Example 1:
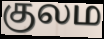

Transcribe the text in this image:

குலம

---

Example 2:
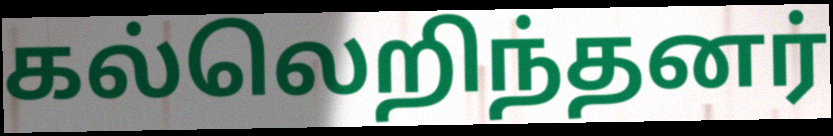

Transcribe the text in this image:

கல்லெறிந்தனர்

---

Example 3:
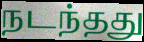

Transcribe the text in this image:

நடந்தது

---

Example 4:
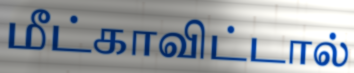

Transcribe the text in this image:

மீட்காவிட்டால்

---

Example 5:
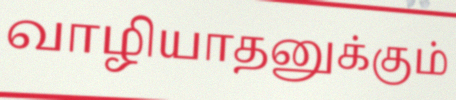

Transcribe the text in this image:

வாழியாதனுக்கும்